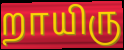
றாயிரு